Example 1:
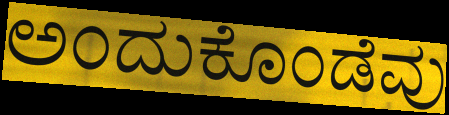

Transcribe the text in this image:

ಅಂದುಕೊಂಡೆವು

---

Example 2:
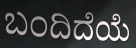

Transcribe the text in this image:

ಬಂದಿದೆಯೆ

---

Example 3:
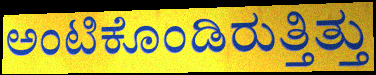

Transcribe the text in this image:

ಅಂಟಿಕೊಂಡಿರುತ್ತಿತ್ತು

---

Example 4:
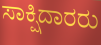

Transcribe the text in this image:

ಸಾಕ್ಷಿದಾರರು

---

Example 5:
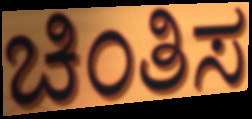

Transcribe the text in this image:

ಚಿಂತಿಸ